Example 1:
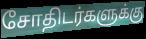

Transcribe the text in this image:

சோதிடர்களுக்கு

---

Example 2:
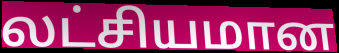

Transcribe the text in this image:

லட்சியமான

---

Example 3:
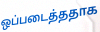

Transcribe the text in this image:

ஒப்படைத்ததாக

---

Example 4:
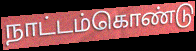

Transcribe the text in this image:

நாட்டம்கொண்டு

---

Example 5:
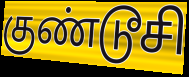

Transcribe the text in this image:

குண்டூசி